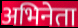
अभिनेता